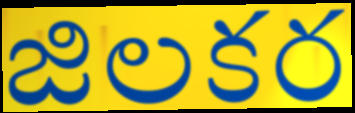
జిలకర